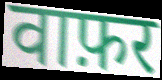
वाफ़र